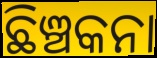
ଛିଞ୍ଚକନା